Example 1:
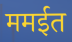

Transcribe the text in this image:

ममईत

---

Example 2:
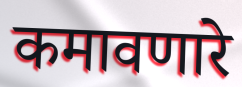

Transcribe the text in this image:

कमावणारे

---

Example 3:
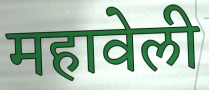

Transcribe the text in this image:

महावेली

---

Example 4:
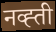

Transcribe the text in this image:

नव्ह्ती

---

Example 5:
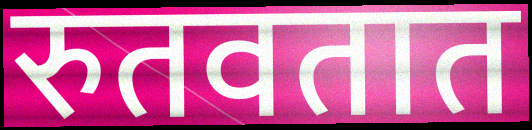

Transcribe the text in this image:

रुतवतात